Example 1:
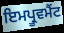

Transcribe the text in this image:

ਇਮਪ੍ਰੂਵਮੈਂਟ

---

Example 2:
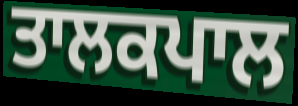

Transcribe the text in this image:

ਤਾਲਕਪਾਲ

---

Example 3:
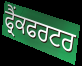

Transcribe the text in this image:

ਫ੍ਰੈਂਕਫਰਟਰ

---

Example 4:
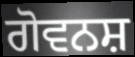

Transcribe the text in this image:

ਗੋਵਨਸ਼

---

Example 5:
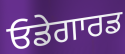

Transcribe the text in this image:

ਓਡੇਗਾਰਡ